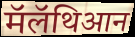
मॅलॅथिआन